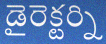
డైరెక్టర్ని